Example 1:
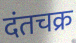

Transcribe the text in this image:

दंतचक्र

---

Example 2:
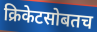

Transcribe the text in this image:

क्रिकेटसोबतच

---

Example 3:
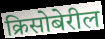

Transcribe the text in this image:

क्रिसोबेरील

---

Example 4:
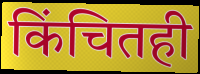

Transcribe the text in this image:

किंचितही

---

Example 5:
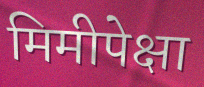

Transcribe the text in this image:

मिमीपेक्षा